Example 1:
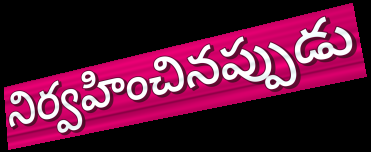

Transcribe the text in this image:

నిర్వహించినప్పుడు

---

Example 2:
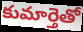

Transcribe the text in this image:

కుమార్తెతో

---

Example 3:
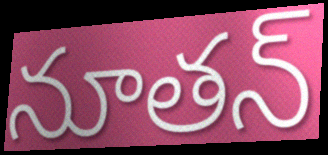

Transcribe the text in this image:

నూతన్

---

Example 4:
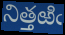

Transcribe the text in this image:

నిత్తఱిఁ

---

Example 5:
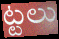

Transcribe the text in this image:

ట్టలు